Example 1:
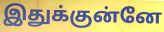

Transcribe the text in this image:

இதுக்குன்னே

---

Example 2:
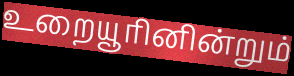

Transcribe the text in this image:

உறையூரினின்றும்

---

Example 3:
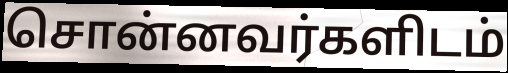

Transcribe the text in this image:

சொன்னவர்களிடம்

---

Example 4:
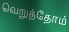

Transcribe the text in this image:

வெறுத்தோம்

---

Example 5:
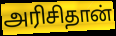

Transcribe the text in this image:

அரிசிதான்